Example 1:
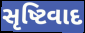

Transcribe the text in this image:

સૃષ્ટિવાદ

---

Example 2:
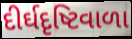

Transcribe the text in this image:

દીર્ઘદૃષ્ટિવાળા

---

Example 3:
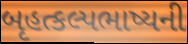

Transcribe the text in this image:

બૃહત્કલ્પભાષ્યની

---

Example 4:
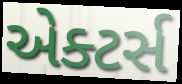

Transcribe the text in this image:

એક્ટર્સ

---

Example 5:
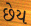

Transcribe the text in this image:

છેય